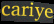
cariye